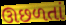
ઊછળતાં